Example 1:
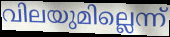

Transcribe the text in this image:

വിലയുമില്ലെന്ന്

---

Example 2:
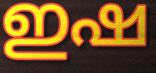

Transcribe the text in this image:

ഇഷ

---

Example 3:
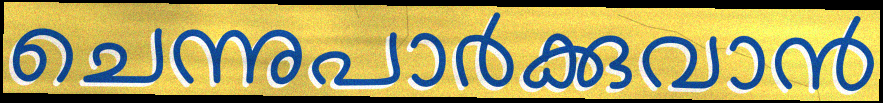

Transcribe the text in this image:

ചെന്നുപാർക്കുവാൻ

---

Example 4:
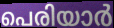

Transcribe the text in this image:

പെരിയാർ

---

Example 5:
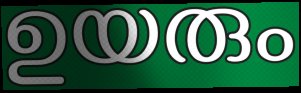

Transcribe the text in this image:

ഉയരും